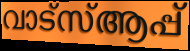
വാട്സ്ആപ്പ്